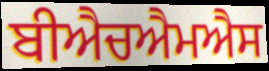
ਬੀਐਚਐਮਐਸ